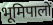
भूमिपालों